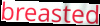
breasted